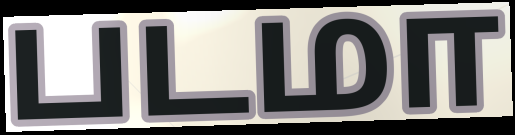
படமா